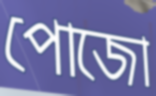
পোজো